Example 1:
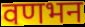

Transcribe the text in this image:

वणभन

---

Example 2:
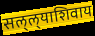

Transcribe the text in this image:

सल्ल्याशिवाय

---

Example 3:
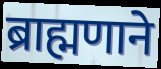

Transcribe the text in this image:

ब्राह्मणाने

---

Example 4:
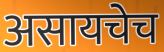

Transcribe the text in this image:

असायचेच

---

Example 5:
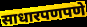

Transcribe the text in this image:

साधारपणपणे